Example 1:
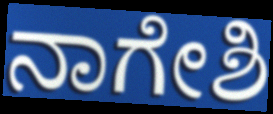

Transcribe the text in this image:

ನಾಗೇಶಿ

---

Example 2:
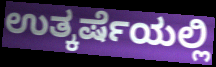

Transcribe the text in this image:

ಉತ್ಕರ್ಷೆಯಲ್ಲಿ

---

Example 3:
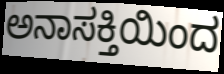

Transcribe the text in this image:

ಅನಾಸಕ್ತಿಯಿಂದ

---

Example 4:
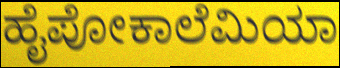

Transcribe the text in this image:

ಹೈಪೋಕಾಲೆಮಿಯಾ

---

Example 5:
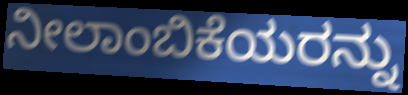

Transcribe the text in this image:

ನೀಲಾಂಬಿಕೆಯರನ್ನು